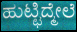
ಹುಟ್ಟಿದ್ಮೇಲೆ